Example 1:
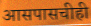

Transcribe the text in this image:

आसपासचीही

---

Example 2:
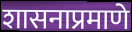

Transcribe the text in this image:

शासनाप्रमाणे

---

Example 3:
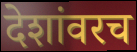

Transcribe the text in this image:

देशांवरच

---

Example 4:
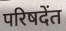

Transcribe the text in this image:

परिषदेंत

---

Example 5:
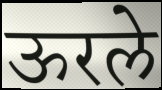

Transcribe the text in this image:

ऊरले